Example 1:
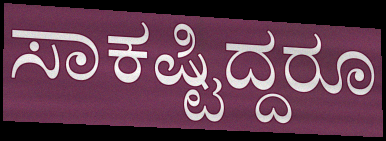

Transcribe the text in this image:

ಸಾಕಷ್ಟಿದ್ದರೂ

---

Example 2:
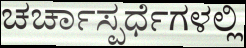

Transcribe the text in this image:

ಚರ್ಚಾಸ್ಪರ್ಧೆಗಳಲ್ಲಿ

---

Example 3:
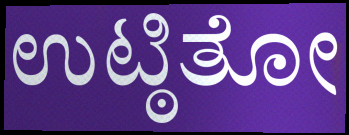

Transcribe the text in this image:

ಉಟ್ಠಿತೋ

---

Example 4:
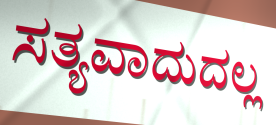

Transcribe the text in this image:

ಸತ್ಯವಾದುದಲ್ಲ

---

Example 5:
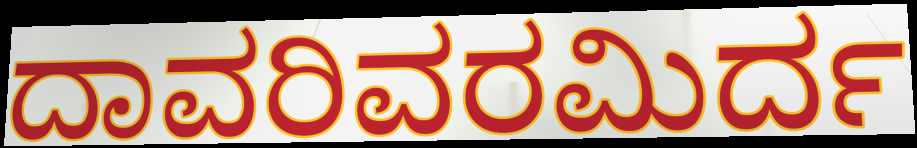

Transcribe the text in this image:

ದಾವರಿವರಮಿರ್ದ